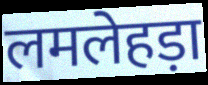
लमलेहड़ा